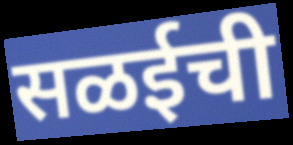
सळईची